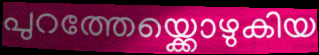
പുറത്തേയ്ക്കൊഴുകിയ